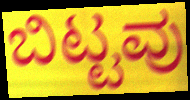
ಬಿಟ್ಟವು